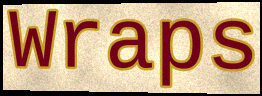
Wraps